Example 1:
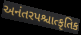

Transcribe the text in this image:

અનંતરપશ્ચાત્કૃતિક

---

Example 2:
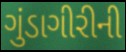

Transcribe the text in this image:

ગુંડાગીરીની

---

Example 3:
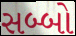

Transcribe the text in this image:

સબ્બો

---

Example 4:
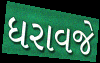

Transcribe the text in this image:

ધરાવજે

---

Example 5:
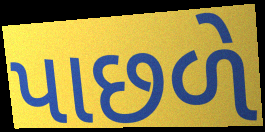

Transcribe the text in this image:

પાછળે